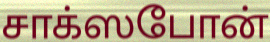
சாக்ஸபோன்